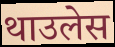
थाउलेस